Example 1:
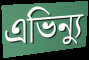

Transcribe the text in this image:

এভিন্যু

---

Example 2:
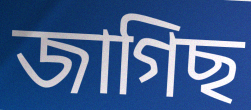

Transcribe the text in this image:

জাগিছ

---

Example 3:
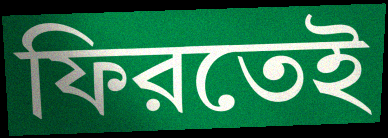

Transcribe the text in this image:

ফিরতেই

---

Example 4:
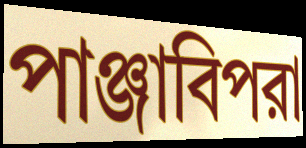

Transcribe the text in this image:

পাঞ্জাবিপরা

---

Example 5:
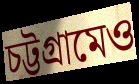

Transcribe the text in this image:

চট্টগ্রামেও